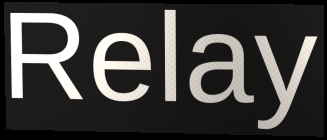
Relay